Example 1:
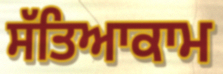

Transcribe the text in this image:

ਸੱਤਿਆਕਾਮ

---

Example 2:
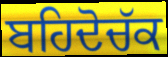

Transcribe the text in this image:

ਬਹਿਦੋਚੱਕ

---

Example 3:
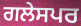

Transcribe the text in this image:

ਗਲੇਸਪਰ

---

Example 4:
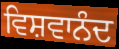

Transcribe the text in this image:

ਵਿਸ਼ਵਾਨੰਦ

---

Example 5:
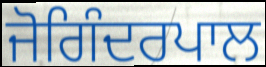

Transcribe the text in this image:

ਜੋਗਿੰਦਰਪਾਲ